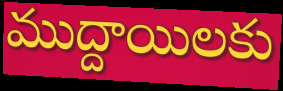
ముద్దాయిలకు